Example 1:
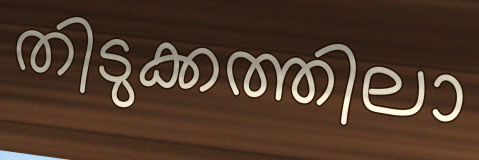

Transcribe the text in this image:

തിടുക്കത്തിലാ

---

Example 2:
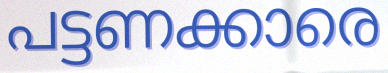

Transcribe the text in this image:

പട്ടണക്കാരെ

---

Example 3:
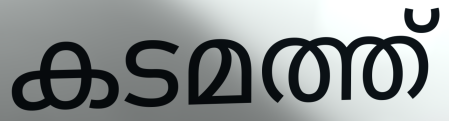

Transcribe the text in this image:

കടമത്ത്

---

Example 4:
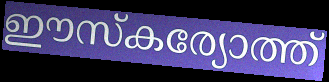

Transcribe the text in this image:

ഈസ്കര്യോത്ത്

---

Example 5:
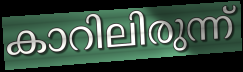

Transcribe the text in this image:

കാറിലിരുന്ന്